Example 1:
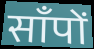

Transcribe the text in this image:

साँपों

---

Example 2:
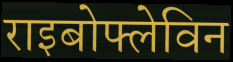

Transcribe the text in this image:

राइबोफ्लेविन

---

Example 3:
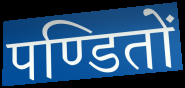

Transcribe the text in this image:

पण्डितों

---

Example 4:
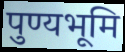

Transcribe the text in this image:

पुण्यभूमि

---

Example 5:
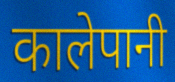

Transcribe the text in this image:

कालेपानी